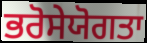
ਭਰੋਸੇਯੋਗਤਾ